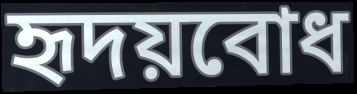
হৃদয়বোধ